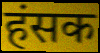
हंसक